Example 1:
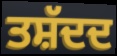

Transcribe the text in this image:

ਤਸ਼ੱਦਦ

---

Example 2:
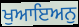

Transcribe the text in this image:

ਖੁਆਇਅਨੁ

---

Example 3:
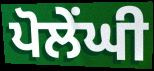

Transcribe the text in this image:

ਪੋਲੇਂਘੀ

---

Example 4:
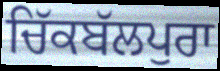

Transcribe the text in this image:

ਚਿੱਕਬੱਲਪੁਰਾ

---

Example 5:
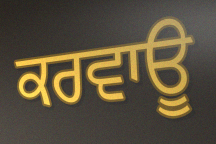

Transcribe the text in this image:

ਕਰਵਾਊ